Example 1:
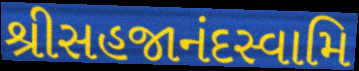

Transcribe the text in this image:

શ્રીસહજાનંદસ્વામિ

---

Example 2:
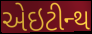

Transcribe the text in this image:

એઇટીન્થ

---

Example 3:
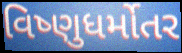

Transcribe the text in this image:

વિષ્ણુધર્મોતર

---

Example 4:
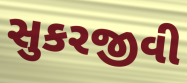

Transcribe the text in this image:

સુકરજીવી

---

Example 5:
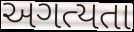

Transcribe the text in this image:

અગત્યતા